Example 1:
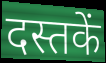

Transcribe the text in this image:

दस्तकें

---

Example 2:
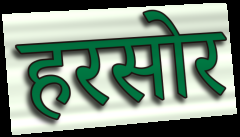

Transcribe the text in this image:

हरसोर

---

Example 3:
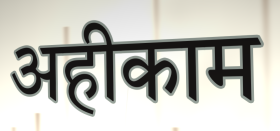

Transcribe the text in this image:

अहीकाम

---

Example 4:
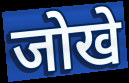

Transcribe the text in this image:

जोखे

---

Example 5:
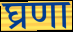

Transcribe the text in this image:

घ्रणा